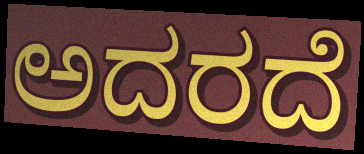
ಅದರದೆ